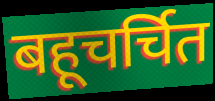
बहूचर्चित